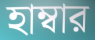
হাম্বার